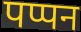
पप्पन